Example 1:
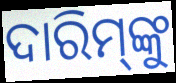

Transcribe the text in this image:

ଦାରିମ୍‍ଙ୍କୁ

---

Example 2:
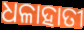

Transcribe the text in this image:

ଧଳାହାତୀ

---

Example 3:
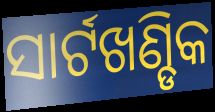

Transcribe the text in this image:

ସାର୍ଟଖଣ୍ଡିକ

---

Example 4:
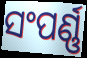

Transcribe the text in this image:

ସଂପର୍ଣ୍ଣ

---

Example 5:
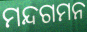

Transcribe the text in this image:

ମନ୍ଦଗମନ